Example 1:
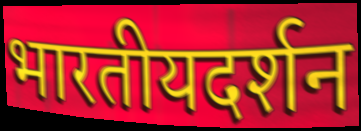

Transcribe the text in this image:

भारतीयदर्शन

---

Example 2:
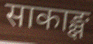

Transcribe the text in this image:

साकाङ्क्ष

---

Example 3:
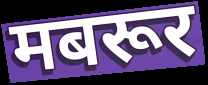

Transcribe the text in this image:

मबरूर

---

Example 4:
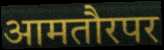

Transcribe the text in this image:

आमतौरपर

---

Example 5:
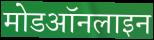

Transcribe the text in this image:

मोडऑनलाइन